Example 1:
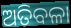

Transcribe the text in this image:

ଅତିବଳା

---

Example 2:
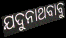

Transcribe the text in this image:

ଯଦୁନାଥବାବୁ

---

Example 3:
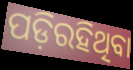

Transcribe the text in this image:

ପଡ଼ିରହିଥିବା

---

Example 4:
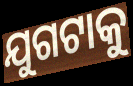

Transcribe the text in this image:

ଯୁଗଟାକୁ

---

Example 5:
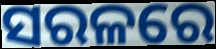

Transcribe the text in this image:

ସରଳରେ